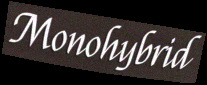
Monohybrid